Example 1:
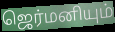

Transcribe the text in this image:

ஜெர்மனியும்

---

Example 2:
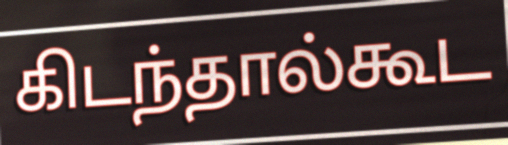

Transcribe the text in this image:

கிடந்தால்கூட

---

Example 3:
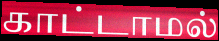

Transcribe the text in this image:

காட்டாமல்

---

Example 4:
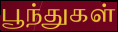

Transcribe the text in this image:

பூந்துகள்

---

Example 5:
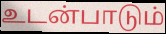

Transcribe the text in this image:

உடன்பாடும்